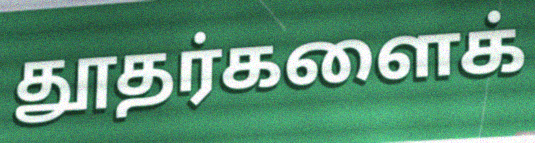
தூதர்களைக்